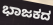
ಭಾಜಕದ